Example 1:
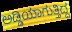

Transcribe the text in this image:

ಅಡ್ಡಿಯಾಗುತ್ತಿದ್ದ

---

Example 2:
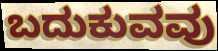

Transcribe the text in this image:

ಬದುಕುವವು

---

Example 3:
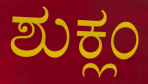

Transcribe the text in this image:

ಶುಕ್ಲಂ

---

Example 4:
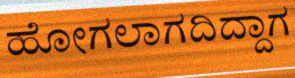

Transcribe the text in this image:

ಹೋಗಲಾಗದಿದ್ದಾಗ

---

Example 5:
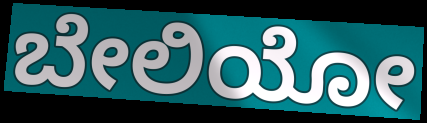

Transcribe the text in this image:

ಬೇಲಿಯೋ